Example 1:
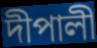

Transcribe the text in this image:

দীপালী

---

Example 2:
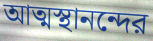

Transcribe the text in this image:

আত্মস্থানন্দের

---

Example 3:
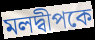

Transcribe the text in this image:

মলদ্বীপকে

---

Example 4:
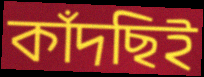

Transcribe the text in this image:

কাঁদছিই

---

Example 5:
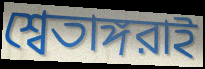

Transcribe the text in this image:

শ্বেতাঙ্গরাই